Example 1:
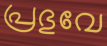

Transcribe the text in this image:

പ്രഭുവേ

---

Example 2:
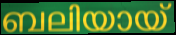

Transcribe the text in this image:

ബലിയായ്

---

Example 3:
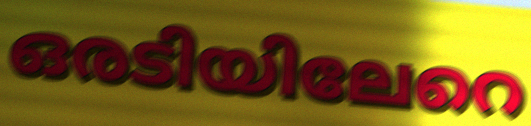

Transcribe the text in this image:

ഒരടിയിലേറെ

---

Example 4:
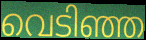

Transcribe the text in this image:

വെടിഞ്ഞ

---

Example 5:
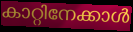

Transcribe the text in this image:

കാറ്റിനേക്കാൾ